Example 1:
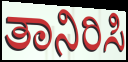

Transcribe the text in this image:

ತಾನಿರಿಸಿ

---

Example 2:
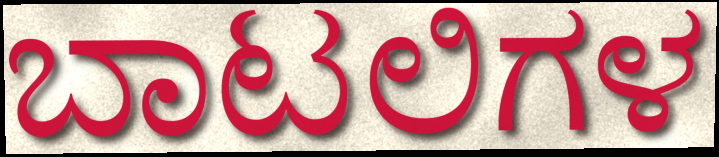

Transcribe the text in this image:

ಬಾಟಲಿಗಳ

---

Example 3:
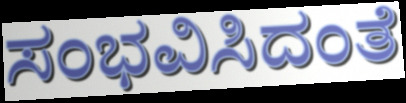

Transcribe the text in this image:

ಸಂಭವಿಸಿದಂತೆ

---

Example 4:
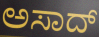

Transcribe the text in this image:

ಅಸಾದ್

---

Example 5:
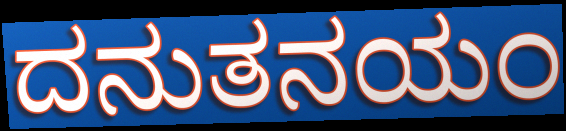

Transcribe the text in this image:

ದನುತನಯಂ